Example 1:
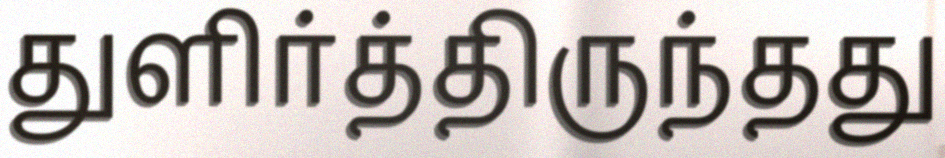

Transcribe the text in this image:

துளிர்த்திருந்தது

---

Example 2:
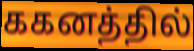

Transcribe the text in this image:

ககனத்தில்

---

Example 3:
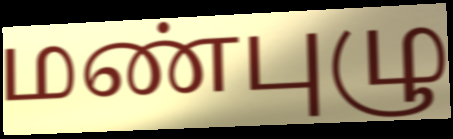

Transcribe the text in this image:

மண்புழு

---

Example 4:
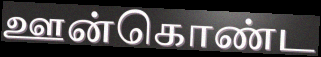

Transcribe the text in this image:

ஊன்கொண்ட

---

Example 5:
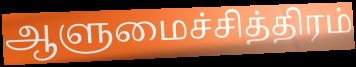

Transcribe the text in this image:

ஆளுமைச்சித்திரம்